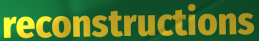
reconstructions